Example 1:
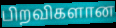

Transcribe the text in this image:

பிறவிகளான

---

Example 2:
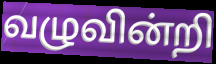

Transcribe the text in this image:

வழுவின்றி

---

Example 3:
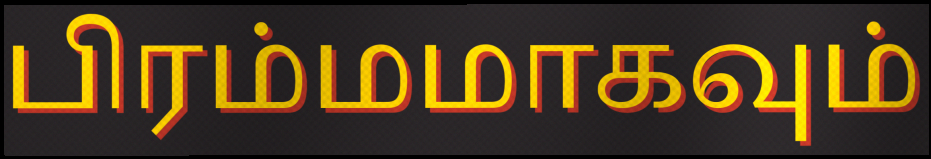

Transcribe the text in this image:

பிரம்மமாகவும்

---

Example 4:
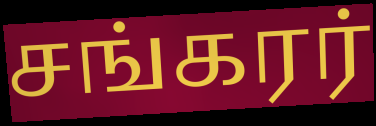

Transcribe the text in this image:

சங்கரர்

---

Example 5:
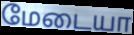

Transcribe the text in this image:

மேடையா